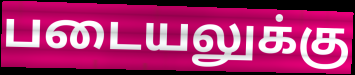
படையலுக்கு